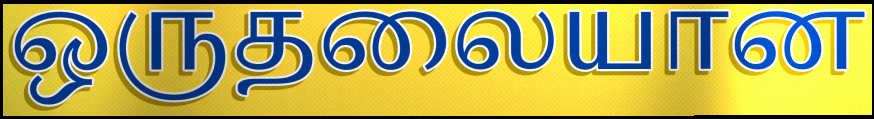
ஒருதலையான